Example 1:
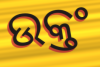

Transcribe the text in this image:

ଉକ୍ତଂ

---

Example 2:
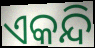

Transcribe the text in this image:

ଏକନ୍ଦି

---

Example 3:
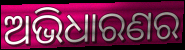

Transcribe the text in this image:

ଅଭିଧାରଣର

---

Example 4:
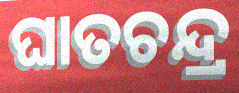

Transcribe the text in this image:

ଘାତଚନ୍ଦ୍ର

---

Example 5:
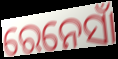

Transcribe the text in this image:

ରେନେସାଁ